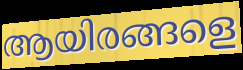
ആയിരങ്ങളെ